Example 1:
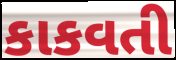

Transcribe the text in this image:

કાકવતી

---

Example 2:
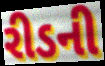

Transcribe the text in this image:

રીડની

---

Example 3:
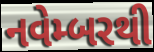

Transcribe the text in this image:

નવેમ્બરથી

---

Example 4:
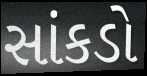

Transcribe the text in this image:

સાંકડો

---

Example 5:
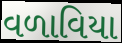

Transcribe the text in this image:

વળાવિયા